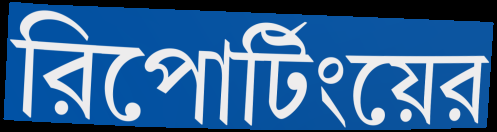
রিপোর্টিংয়ের